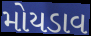
મોયડાવ